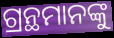
ଗ୍ରନ୍ଥମାନଙ୍କୁ